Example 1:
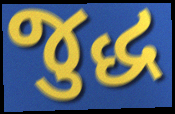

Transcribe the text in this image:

જુદ્ધ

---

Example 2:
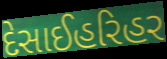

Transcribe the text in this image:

દેસાઈહરિહર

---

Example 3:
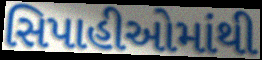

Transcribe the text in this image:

સિપાહીઓમાંથી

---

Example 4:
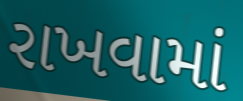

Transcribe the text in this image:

રાખવામાં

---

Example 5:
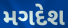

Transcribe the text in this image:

મગદેશ